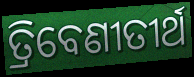
ତ୍ରିବେଣୀତୀର୍ଥ